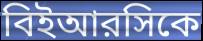
বিইআরসিকে